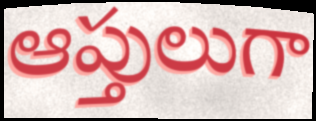
ఆప్తులుగా